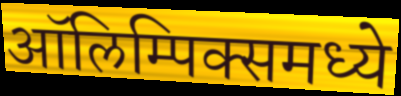
ऑलिम्पिक्समध्ये